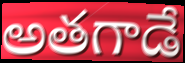
అతగాడే